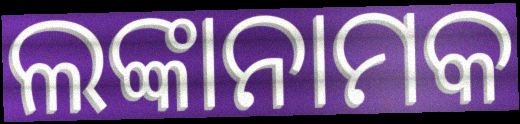
ଲଙ୍କାନାମକ